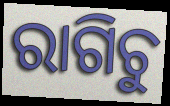
ରାଗିଚୁ